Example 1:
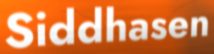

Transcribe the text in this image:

Siddhasen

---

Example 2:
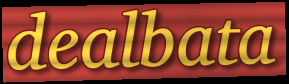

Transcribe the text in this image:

dealbata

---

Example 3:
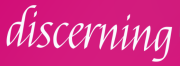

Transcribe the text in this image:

discerning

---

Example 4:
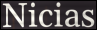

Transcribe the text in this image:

Nicias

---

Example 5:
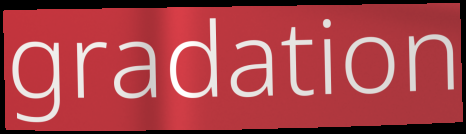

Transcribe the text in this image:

gradation